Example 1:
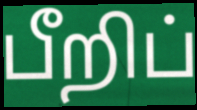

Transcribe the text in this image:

பீறிப்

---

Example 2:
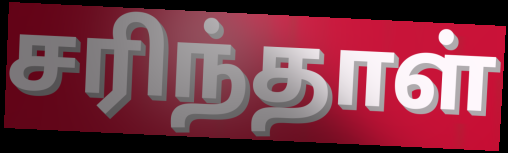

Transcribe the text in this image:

சரிந்தாள்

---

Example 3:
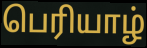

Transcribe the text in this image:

பெரியாழ்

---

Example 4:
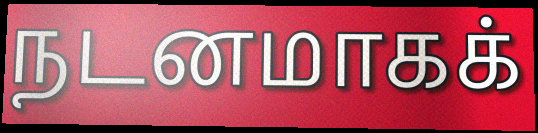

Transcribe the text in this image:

நடனமாகக்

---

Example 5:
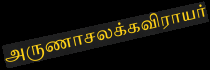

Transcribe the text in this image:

அருணாசலக்கவிராயர்